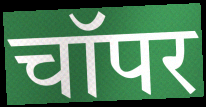
चॉपर